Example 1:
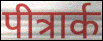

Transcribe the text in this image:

पीत्रार्क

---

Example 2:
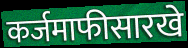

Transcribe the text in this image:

कर्जमाफीसारखे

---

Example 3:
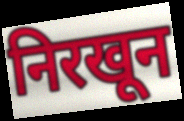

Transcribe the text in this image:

निरखून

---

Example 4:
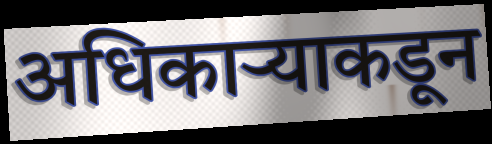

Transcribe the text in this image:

अधिकाऱ्याकडून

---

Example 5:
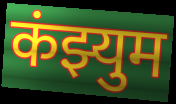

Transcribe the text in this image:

कंझ्युम